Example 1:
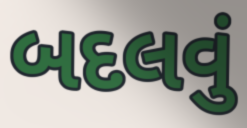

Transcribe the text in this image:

બદલવું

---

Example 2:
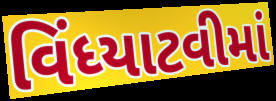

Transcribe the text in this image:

વિંધ્યાટવીમાં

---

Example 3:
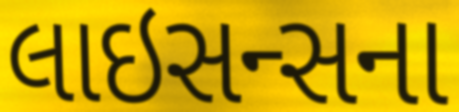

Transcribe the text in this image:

લાઇસન્સના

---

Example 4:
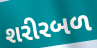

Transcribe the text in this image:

શરીરબળ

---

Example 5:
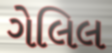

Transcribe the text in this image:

ગેલિલ